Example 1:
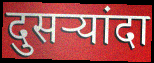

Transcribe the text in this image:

दुसऱ्यांदा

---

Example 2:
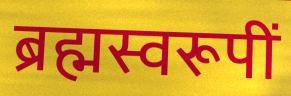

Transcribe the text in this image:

ब्रह्मस्वरूपीं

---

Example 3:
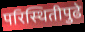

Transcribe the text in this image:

परिस्थितीपुढे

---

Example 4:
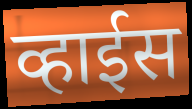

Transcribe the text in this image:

व्हाईस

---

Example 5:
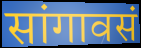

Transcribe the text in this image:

सांगावसं